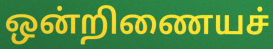
ஒன்றிணையச்